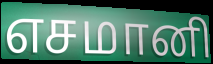
எசமானி